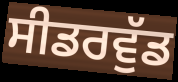
ਸੀਡਰਵੁੱਡ